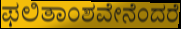
ಫಲಿತಾಂಶವೇನೆಂದರೆ